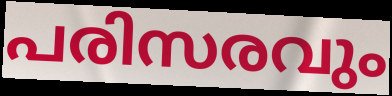
പരിസരവും